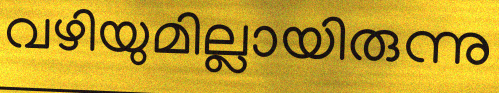
വഴിയുമില്ലായിരുന്നു